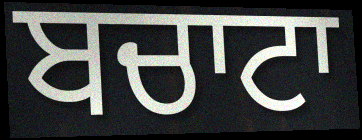
ਬਚਾਟਾ